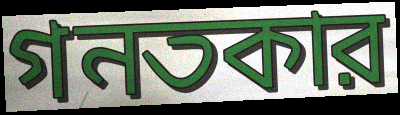
গনতকার